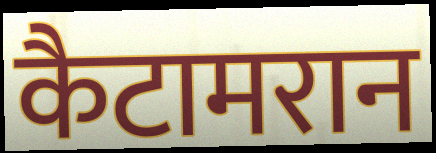
कैटामरान